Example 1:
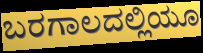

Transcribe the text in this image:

ಬರಗಾಲದಲ್ಲಿಯೂ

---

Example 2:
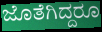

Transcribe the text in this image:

ಜೊತೆಗಿದ್ದರೂ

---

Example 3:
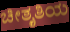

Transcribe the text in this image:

ಚೀತ್ಕೃತಿಯ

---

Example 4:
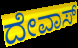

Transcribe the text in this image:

ದೇವಾಸ್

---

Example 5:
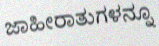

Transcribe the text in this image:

ಜಾಹೀರಾತುಗಳನ್ನೂ